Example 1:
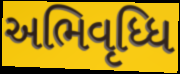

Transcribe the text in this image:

અભિવૃધ્ધિ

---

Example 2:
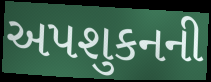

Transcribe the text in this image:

અપશુકનની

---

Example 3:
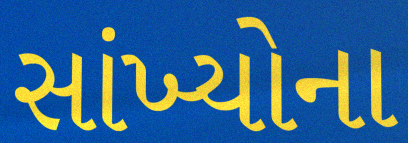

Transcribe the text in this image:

સાંખ્યોના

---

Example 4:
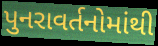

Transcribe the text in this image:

પુનરાવર્તનોમાંથી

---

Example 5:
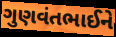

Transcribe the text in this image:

ગુણવંતભાઈને